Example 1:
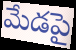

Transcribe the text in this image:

మేడపై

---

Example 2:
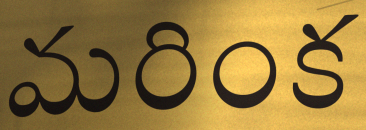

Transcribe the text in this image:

మరింక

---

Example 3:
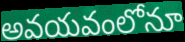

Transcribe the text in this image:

అవయవంలోనూ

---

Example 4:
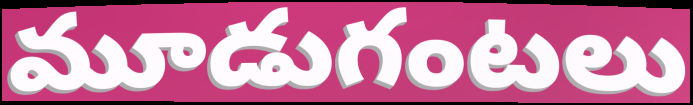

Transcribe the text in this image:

మూడుగంటలు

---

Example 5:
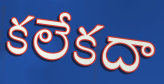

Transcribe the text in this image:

కలేకదా